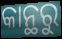
କାନ୍ଥରୁ